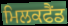
ਮਿਲਕਫੈਂਡ